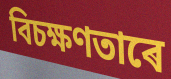
বিচক্ষণতাৰে